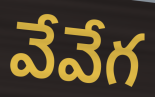
వేవేగ